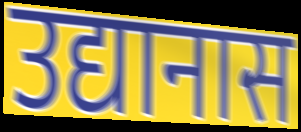
उद्यानास